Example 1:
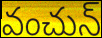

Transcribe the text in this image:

వంచున్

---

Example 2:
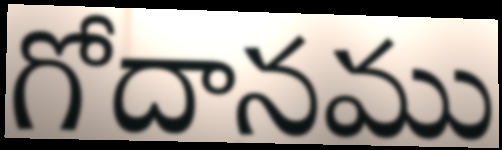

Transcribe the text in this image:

గోదానము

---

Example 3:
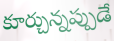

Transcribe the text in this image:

కూర్చున్నప్పుడే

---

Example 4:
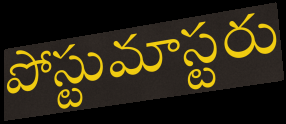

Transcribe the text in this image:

పోస్టుమాస్టరు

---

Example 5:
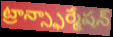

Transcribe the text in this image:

ట్రాన్స్ఫార్మేషన్